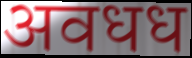
अवधध